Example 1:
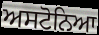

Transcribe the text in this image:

ਅਸਟੋਨਿਆ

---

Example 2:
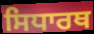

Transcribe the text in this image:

ਸਿਧਾਰਥ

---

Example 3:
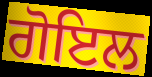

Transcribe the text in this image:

ਗੋਇਲ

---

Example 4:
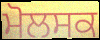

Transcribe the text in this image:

ਮੋਲਸਕ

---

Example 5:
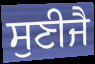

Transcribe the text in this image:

ਸੁਣੀਜੈ